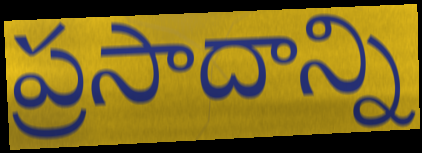
ప్రసాదాన్ని